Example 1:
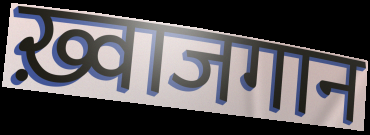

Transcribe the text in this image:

ख़्वाजगान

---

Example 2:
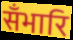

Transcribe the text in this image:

सँभारि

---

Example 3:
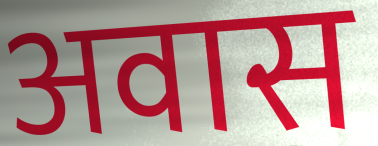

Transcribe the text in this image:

अवास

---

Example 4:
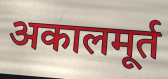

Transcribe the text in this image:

अकालमूर्त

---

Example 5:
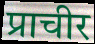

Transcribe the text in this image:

प्राचीर